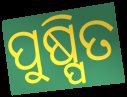
ପୁଷ୍ପିତ